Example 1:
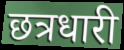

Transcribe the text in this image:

छत्रधारी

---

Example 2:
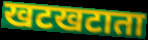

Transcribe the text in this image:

खटखटाता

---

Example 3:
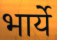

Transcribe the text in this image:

भार्ये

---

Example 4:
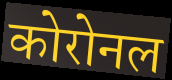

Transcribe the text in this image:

कोरोनल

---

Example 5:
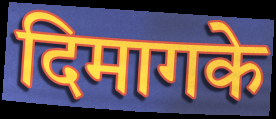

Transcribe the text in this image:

दिमागके